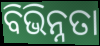
ବିଭିନ୍ନତା